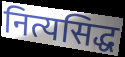
नित्यसिद्ध